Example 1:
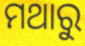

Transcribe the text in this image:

ମଥାରୁ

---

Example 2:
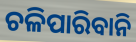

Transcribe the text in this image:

ଚଳିପାରିବାନି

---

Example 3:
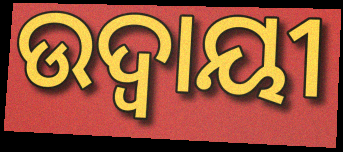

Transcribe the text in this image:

ଉଦ୍ବାୟୀ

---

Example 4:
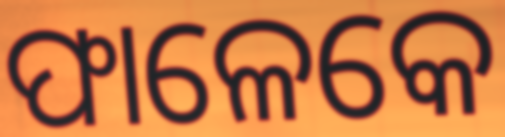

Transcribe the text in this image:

ଫାଳେକେ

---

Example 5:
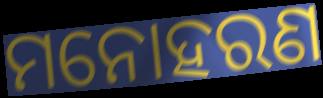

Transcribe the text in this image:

ମନୋହରଣ